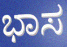
ಭಾಸ